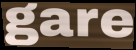
gare